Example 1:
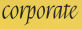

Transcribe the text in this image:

corporate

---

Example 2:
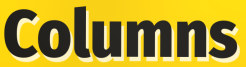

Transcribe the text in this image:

Columns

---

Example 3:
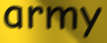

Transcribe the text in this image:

army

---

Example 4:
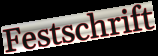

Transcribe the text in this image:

Festschrift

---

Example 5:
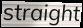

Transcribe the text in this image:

straight